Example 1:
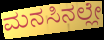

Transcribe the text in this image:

ಮನಸಿನಲ್ಲೇ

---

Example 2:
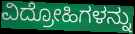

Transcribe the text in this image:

ವಿದ್ರೋಹಿಗಳನ್ನು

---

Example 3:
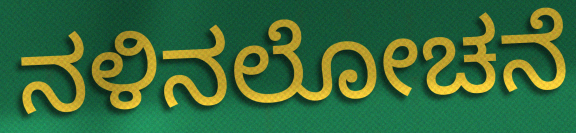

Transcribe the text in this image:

ನಳಿನಲೋಚನೆ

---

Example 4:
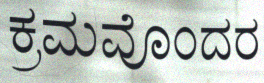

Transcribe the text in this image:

ಕ್ರಮವೊಂದರ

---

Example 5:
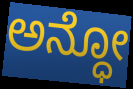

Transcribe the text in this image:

ಅನ್ಧೋ